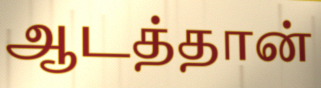
ஆடத்தான்